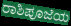
ರಾಶಿಪೂಜೆಯ